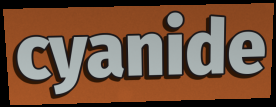
cyanide